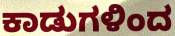
ಕಾಡುಗಳಿಂದ